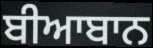
ਬੀਆਬਾਨ